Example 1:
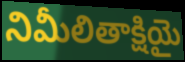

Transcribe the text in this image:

నిమీలితాక్షియై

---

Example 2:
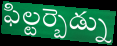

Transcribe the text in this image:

ఫిల్టర్బెడ్ను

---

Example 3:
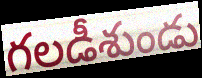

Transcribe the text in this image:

గలడీశుండు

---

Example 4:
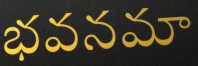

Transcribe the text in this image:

భవనమా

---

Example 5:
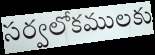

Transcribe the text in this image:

సర్వలోకములకు